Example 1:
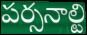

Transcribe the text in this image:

పర్సనాల్టి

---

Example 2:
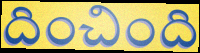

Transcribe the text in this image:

దించింది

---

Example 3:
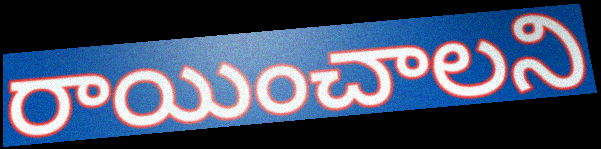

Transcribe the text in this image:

రాయించాలని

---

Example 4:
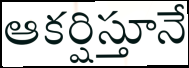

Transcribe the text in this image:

ఆకర్షిస్తూనే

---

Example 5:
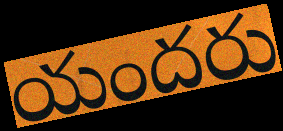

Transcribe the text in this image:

యందరు